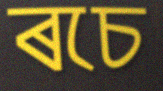
ৰচে